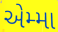
એમ્મા